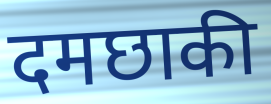
दमछाकी